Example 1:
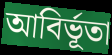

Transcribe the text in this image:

আবির্ভূতা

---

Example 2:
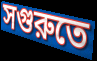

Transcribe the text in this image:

সগুরুতে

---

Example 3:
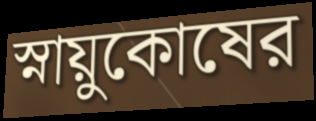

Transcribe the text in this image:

স্নায়ুকোষের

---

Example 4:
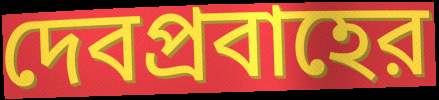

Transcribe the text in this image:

দেবপ্রবাহের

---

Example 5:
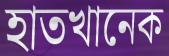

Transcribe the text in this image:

হাতখানেক